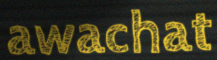
awachat